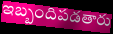
ఇబ్బందిపడతారు